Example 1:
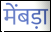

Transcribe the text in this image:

मेंबड़ा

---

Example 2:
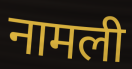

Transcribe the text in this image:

नामली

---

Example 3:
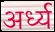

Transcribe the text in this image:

अर्ध्य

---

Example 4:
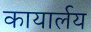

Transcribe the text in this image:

कायार्लय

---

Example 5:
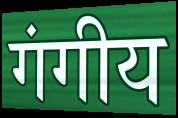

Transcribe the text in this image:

गंगीय